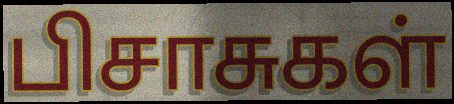
பிசாசுகள்